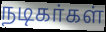
நடிகர்கள்